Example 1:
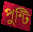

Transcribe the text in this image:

পুন্টি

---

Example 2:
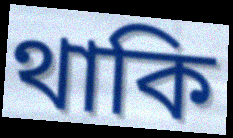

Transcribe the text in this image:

থাকি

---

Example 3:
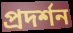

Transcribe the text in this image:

প্রদর্শন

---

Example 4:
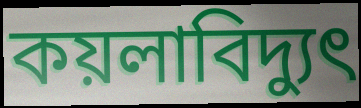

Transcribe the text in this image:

কয়লাবিদ্যুৎ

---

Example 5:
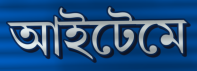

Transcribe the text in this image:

আইটেমে